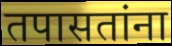
तपासतांना